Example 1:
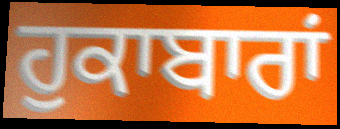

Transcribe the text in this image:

ਹੁਕਾਬਾਰਾਂ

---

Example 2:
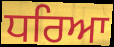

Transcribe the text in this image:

ਧਰਿਆ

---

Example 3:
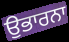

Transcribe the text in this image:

ਉਭਾਰਨਾ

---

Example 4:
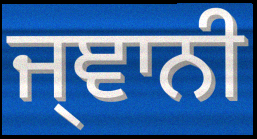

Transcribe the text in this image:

ਜ੍ਞਾਨੀ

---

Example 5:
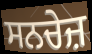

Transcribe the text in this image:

ਸਨਚੇਜ਼